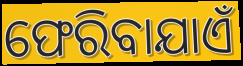
ଫେରିବାଯାଏଁ